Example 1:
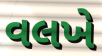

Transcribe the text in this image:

વલખે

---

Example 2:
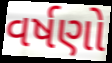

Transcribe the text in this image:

વર્ષણો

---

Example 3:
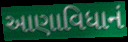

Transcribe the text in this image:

આણાવિધાનં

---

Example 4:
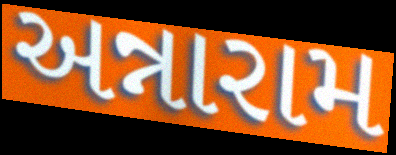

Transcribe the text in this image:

અન્નારામ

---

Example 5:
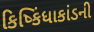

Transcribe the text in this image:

કિષ્કિંધાકાંડની